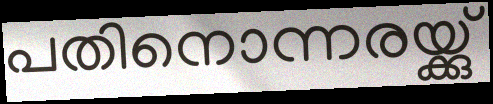
പതിനൊന്നരയ്ക്കു്